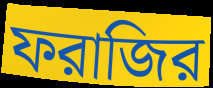
ফরাজির